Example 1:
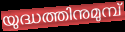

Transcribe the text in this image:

യുദ്ധത്തിനുമുമ്പ്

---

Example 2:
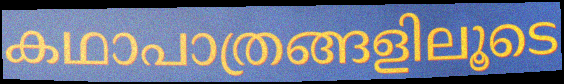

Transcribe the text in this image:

കഥാപാത്രങ്ങളിലൂടെ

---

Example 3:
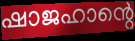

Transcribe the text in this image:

ഷാജഹാന്റെ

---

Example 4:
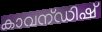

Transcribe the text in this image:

കാവന്ഡിഷ്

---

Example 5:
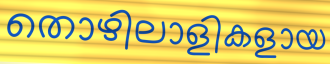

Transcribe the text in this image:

തൊഴിലാളികളായ